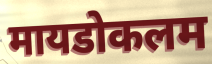
मायडोकलम